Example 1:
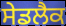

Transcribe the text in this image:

ਸੇਡਲੈਕ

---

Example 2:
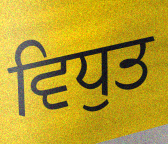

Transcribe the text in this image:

ਵਿਧੁਤ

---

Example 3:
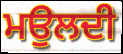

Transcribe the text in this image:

ਮਉਲਦੀ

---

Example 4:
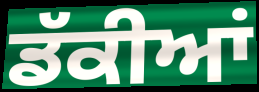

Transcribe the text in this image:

ਡੱਕੀਆਂ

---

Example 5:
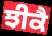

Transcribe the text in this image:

ਝੀਕੈ